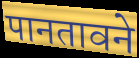
पानतावने